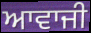
ਆਵਾਜੀ